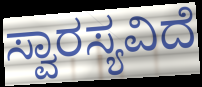
ಸ್ವಾರಸ್ಯವಿದೆ